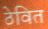
ठेवित